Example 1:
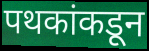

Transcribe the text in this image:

पथकांकडून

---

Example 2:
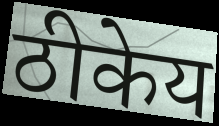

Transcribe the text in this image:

ठीकेय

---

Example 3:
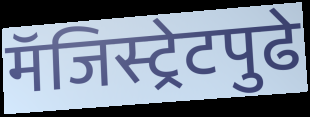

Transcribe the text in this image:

मॅजिस्ट्रेटपुढे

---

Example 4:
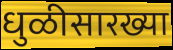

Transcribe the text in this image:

धुळीसारख्या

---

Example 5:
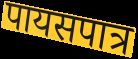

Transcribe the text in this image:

पायसपात्र